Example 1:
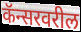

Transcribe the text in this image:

कॅन्सरवरील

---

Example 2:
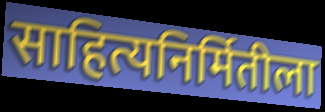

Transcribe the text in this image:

साहित्यनिर्मितीला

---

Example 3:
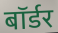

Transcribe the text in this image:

बॉर्डर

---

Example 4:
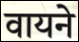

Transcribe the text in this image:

वायने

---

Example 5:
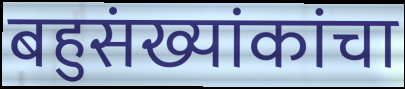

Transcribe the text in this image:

बहुसंख्यांकांचा